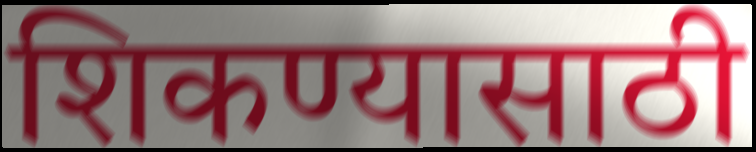
शिकण्यासाठी